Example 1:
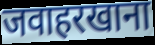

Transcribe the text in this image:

जवाहरखाना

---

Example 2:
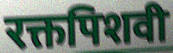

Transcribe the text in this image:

रक्तपिशवी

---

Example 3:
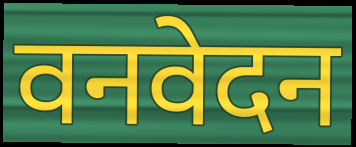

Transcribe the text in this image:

वनवेदन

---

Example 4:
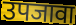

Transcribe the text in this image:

उपजावा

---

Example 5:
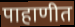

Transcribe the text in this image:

पाहाणीत